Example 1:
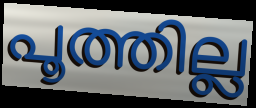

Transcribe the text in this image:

പൂത്തില്ല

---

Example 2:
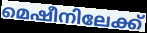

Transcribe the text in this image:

മെഷീനിലേക്ക്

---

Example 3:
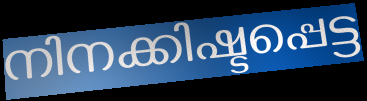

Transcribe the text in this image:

നിനക്കിഷ്ടപ്പെട്ട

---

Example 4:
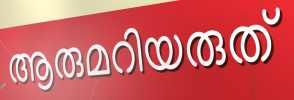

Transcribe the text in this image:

ആരുമറിയരുത്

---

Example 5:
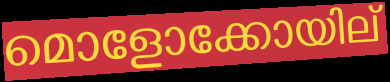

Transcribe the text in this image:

മൊളോക്കോയില്